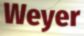
Weyer